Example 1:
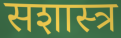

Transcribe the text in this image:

सशास्त्र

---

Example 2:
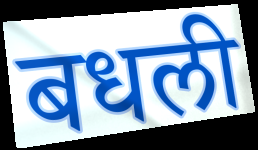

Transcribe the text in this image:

बधली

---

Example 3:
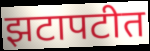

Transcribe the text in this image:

झटापटीत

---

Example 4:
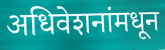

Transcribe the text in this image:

अधिवेशनांमधून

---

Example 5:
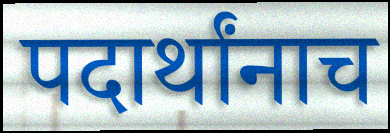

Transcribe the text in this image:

पदार्थांनाच